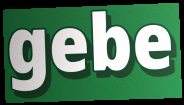
gebe